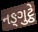
નઙ્ગુટ્ઠે